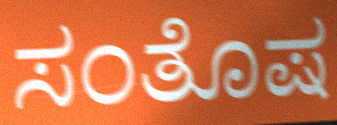
ಸಂತೊಷ